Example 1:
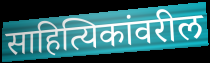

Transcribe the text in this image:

साहित्यिकांवरील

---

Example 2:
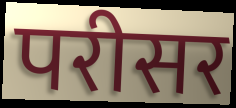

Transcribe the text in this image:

परीसर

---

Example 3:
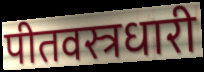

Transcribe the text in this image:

पीतवस्त्रधारी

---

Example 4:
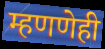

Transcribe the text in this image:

म्हणणेही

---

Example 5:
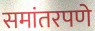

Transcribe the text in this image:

समांतरपणे